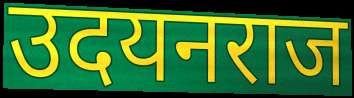
उदयनराज